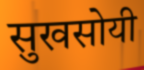
सुखसोयी